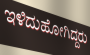
ಇಳಿದುಹೋಗಿದ್ದರು